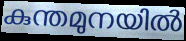
കുന്തമുനയിൽ